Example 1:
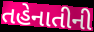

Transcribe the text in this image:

તહેનાતીની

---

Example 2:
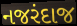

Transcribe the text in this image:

નજરંદાજ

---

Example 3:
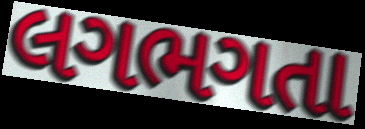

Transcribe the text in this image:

લગભગતા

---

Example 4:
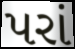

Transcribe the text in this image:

પરાં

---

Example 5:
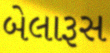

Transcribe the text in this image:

બેલારૂસ